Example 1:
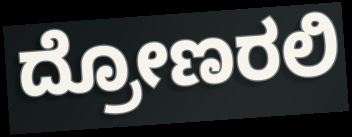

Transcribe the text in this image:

ದ್ರೋಣರಲಿ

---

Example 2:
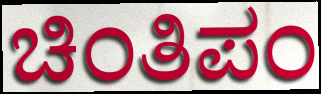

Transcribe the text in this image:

ಚಿಂತಿಪಂ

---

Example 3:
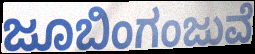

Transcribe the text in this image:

ಜೂಬಿಂಗಂಜುವೆ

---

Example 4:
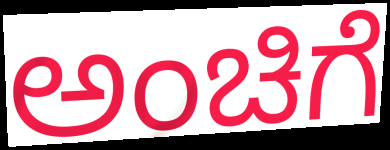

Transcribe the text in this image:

ಅಂಚಿಗೆ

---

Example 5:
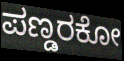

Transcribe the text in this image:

ಪಣ್ಡರಕೋ